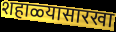
शहाळ्यासारखा